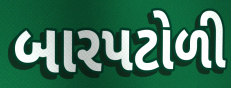
બારપટોળી